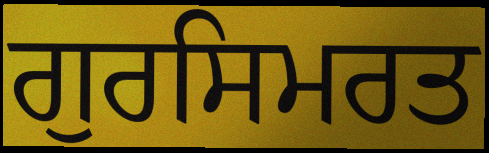
ਗੁਰਸਿਮਰਤ